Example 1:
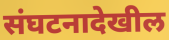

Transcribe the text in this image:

संघटनादेखील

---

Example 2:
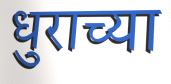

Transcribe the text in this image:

धुराच्या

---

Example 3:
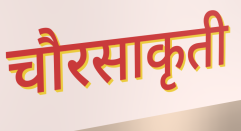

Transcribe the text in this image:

चौरसाकृती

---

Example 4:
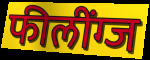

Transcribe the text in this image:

फीलींग्ज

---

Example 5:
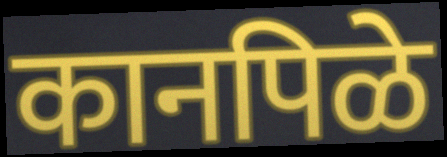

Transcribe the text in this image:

कानपिळे